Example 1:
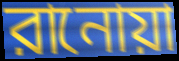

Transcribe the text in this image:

রানোয়া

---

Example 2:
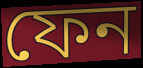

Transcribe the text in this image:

ফেন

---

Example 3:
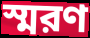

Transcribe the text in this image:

স্মরণ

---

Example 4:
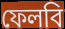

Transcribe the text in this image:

ফেলবি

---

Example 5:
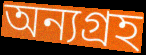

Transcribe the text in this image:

অন্যগ্রহ